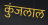
कुंजलाल